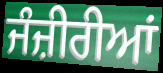
ਜੰਜ਼ੀਰੀਆਂ